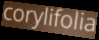
corylifolia